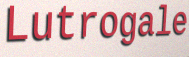
Lutrogale